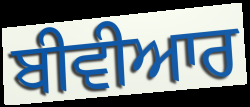
ਬੀਵੀਆਰ